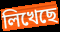
লিখেছে